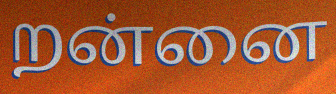
றன்னை